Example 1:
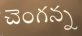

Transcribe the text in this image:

చెంగన్న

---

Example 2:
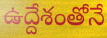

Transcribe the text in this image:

ఉద్దేశంతోనే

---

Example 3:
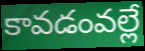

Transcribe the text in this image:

కావడంవల్లే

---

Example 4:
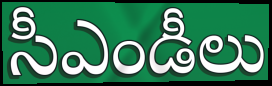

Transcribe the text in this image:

సీఎండీలు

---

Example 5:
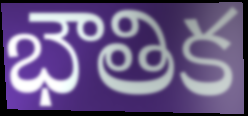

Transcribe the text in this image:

భౌతిక